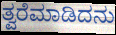
ತ್ವರೆಮಾಡಿದನು